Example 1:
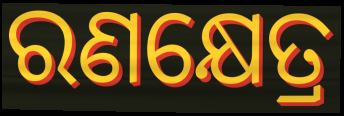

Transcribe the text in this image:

ରଣକ୍ଷେତ୍ର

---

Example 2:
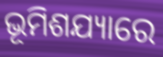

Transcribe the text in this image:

ଭୂମିଶଯ୍ୟାରେ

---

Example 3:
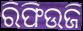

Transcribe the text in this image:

ରିଫିଉଜି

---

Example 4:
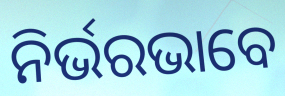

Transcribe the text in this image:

ନିର୍ଭରଭାବେ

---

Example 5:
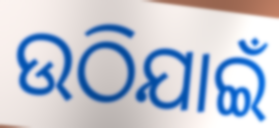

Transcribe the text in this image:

ଉଠିଯାଇଁ